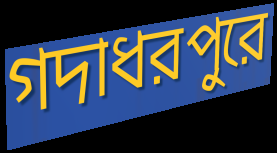
গদাধরপুরে